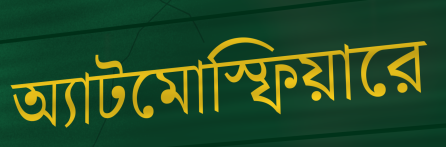
অ্যাটমোস্ফিয়ারে